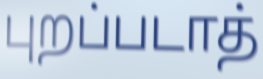
புறப்படாத்